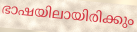
ഭാഷയിലായിരിക്കും